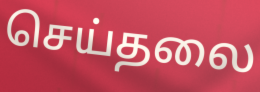
செய்தலை